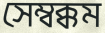
সেম্বক্কম